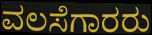
ವಲಸೆಗಾರರು